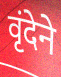
वृंदेने